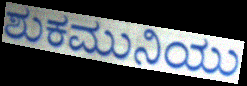
ಶುಕಮುನಿಯು